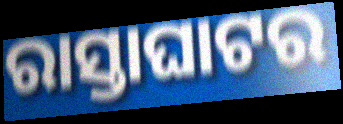
ରାସ୍ତାଘାଟର